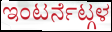
ಇಂಟರ್ನೆಟ್ಗಳ